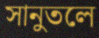
সানুতলে